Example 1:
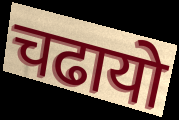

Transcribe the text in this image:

चढायो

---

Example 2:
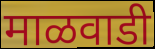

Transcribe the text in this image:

माळवाडी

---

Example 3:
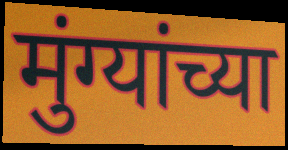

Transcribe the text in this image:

मुंग्यांच्या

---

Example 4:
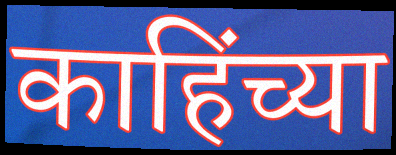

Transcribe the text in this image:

काहिंच्या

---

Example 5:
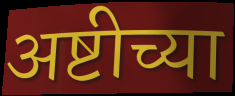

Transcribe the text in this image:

अष्टीच्या